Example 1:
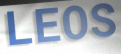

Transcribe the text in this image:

LEOS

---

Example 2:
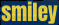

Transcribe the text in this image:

smiley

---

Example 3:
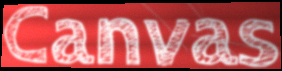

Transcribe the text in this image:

Canvas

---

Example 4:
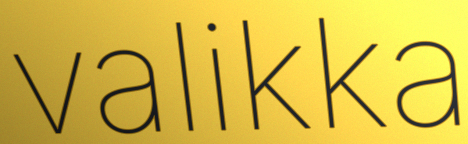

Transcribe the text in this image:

valikka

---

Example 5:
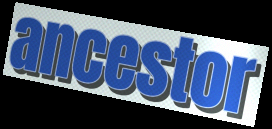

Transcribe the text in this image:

ancestor